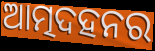
ଆତ୍ମଦହନର